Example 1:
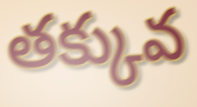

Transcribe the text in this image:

తక్కువ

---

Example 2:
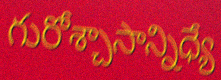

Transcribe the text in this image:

గురోశ్చాసాన్నిధ్యే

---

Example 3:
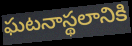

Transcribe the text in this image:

ఘటనాస్థలానికి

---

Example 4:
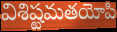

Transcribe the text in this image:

విశిష్టమతయోపి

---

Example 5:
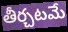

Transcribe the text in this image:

తీర్చటమే